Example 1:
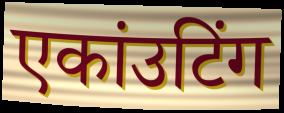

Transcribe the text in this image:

एकांउटिंग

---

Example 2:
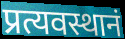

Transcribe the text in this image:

प्रत्यवस्थानं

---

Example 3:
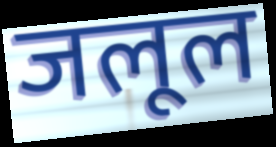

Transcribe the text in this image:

जलूल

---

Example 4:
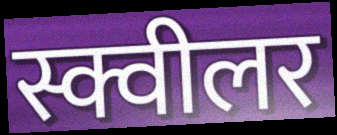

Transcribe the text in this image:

स्क्वीलर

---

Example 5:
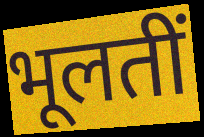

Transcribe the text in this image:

भूलतीं